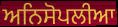
ਅਨਿਸੋਪਲੀਆ